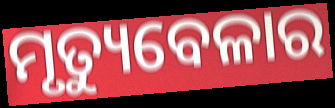
ମୃତ୍ୟୁବେଳାର